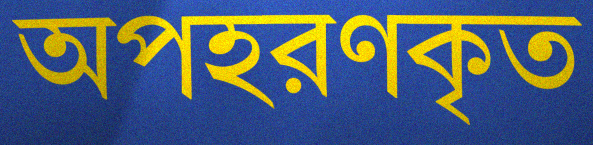
অপহরণকৃত